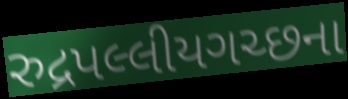
રુદ્રપલ્લીયગચ્છના